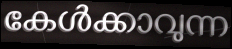
കേൾക്കാവുന്ന